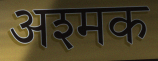
अश्मक